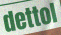
dettol